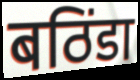
बठिंडा